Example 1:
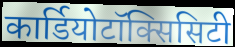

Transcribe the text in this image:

कार्डियोटॉक्सिसिटी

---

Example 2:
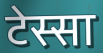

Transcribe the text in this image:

टेस्सा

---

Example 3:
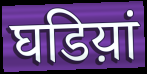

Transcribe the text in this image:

घडिय़ां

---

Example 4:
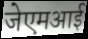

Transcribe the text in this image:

जेएमआई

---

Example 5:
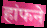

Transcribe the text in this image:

हांफने